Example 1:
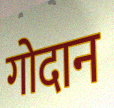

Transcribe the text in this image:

गोदान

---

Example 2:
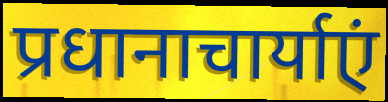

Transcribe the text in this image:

प्रधानाचार्याएं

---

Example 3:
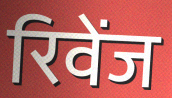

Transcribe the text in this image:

रिवेंज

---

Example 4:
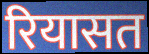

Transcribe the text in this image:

रियासत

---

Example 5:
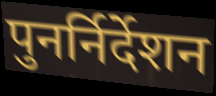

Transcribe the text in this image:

पुनर्निर्देशन